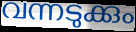
വന്നടുക്കും